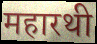
महारथी